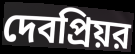
দেবপ্রিয়র